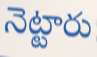
నెట్టారు